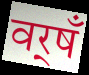
वर्षँ